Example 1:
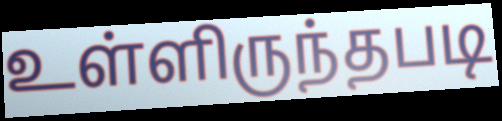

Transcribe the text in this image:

உள்ளிருந்தபடி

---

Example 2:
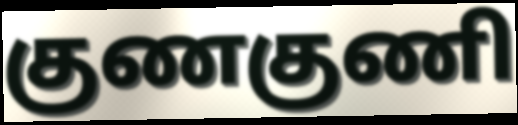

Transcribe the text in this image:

குணகுணி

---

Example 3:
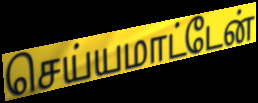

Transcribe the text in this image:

செய்யமாட்டேன்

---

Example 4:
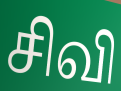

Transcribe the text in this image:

சிவி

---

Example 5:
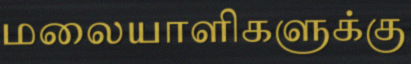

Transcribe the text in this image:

மலையாளிகளுக்கு